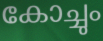
കോച്ചും